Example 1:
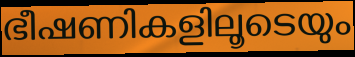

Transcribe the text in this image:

ഭീഷണികളിലൂടെയും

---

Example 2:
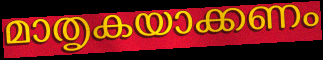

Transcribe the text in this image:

മാതൃകയാക്കണം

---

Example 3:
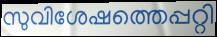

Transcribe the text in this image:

സുവിശേഷത്തെപ്പറ്റി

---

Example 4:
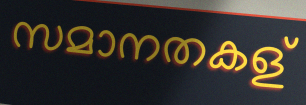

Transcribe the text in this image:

സമാനതകള്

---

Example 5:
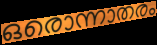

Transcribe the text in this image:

ഒരൊന്നാതരം